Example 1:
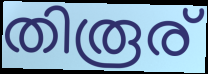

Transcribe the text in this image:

തിരൂര്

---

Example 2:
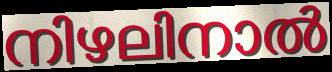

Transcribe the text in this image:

നിഴലിനാൽ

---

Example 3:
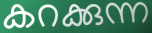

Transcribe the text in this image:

കറക്കുന്ന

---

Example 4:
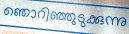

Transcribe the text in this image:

ഞൊറിഞ്ഞുടുക്കുന്നു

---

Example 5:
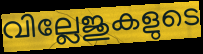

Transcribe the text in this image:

വില്ലേജുകളുടെ